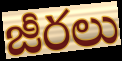
జీరలు